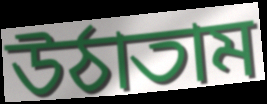
উঠাতাম